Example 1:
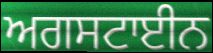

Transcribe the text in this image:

ਅਗਸਟਾਈਨ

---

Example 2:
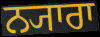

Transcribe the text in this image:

ਨ੍ਯਾਰਾ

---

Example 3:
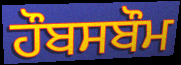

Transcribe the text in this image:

ਹੌਬਸਬੌਮ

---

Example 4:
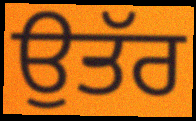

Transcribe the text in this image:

ਉਤੱਰ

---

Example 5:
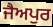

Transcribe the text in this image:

ਜੈਅਪੁਰ